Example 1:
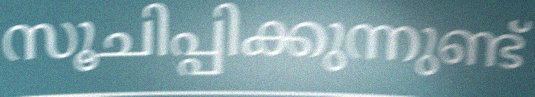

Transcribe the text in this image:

സൂചിപ്പിക്കുന്നുണ്ട്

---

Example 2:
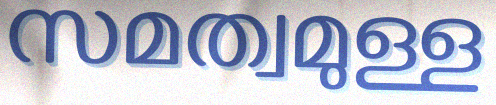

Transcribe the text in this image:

സമത്വമുള്ള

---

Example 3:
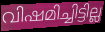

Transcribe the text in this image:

വിഷമിച്ചിട്ടില്ല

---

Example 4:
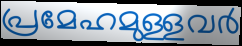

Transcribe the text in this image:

പ്രമേഹമുള്ളവർ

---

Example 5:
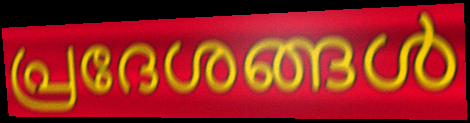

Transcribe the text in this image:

പ്രദേശങ്ങൾ